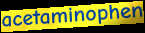
acetaminophen